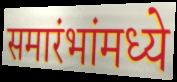
समारंभांमध्ये